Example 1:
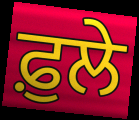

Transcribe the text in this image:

ਫ਼ੁਲੇ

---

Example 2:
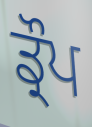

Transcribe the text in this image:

ਡ੍ਰੌਪ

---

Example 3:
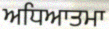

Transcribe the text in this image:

ਅਧਿਆਤਮਾ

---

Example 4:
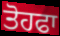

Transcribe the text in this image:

ਤੋਹਫਾ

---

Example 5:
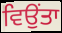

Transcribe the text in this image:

ਵਿਉਂਤਾ